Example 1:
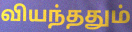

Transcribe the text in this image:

வியந்ததும்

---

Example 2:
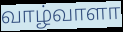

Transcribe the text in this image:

வாழ்வாளா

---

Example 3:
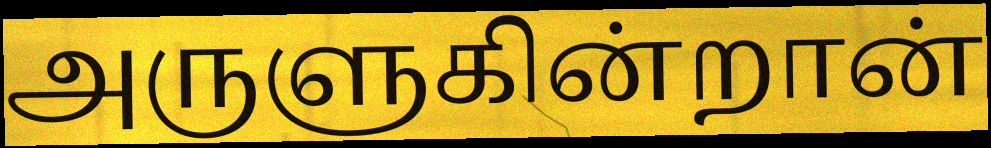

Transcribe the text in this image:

அருளுகின்றான்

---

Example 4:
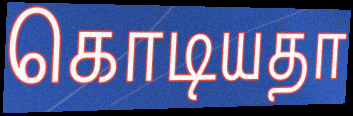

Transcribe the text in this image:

கொடியதா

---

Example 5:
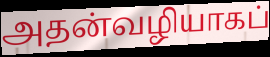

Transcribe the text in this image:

அதன்வழியாகப்